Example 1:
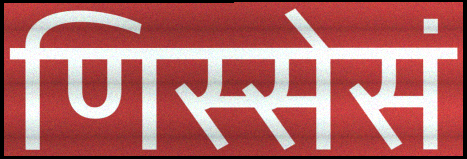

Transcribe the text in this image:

णिस्सेसं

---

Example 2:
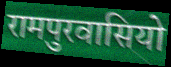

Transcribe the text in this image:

रामपुरवासियो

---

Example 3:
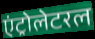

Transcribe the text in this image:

एंट्रोलेटरल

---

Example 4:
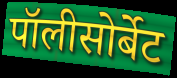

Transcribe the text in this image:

पॉलीसोर्बेट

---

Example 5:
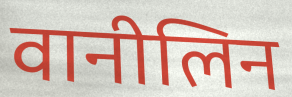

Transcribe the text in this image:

वानीलिन